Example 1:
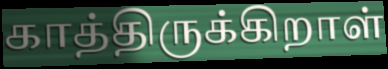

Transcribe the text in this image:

காத்திருக்கிறாள்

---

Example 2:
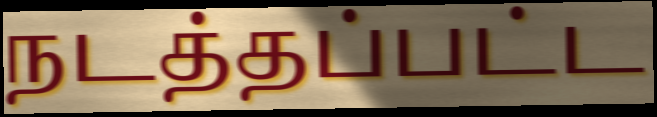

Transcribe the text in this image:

நடத்தப்பட்ட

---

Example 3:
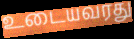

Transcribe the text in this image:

உடையவரது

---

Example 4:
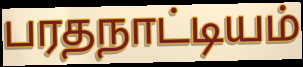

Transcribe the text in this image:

பரதநாட்டியம்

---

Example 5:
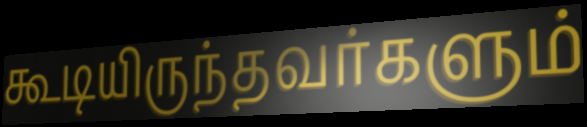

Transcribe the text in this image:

கூடியிருந்தவர்களும்